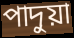
পাদুয়া